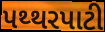
પથ્થરપાટી